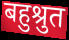
बहुश्रुत